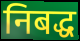
निबद्ध